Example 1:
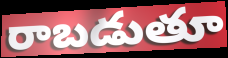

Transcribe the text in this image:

రాబడుతూ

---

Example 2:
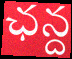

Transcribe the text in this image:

ఛన్ద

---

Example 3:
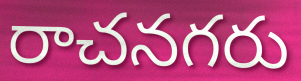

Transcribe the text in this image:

రాచనగరు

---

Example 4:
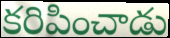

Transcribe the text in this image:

కరిపించాడు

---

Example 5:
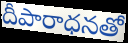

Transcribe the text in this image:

దీపారాధనతో